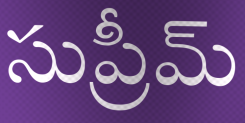
సుప్రీమ్